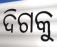
ଦିଗକୁ